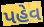
પહેવ